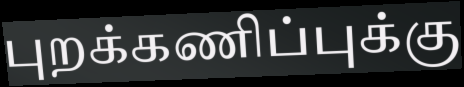
புறக்கணிப்புக்கு